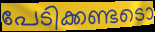
പേടിക്കണ്ടടൊ